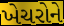
ખેચરોને